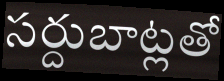
సర్దుబాట్లతో